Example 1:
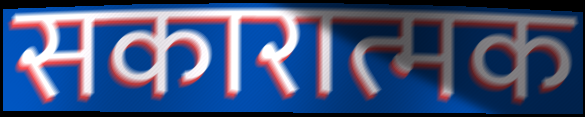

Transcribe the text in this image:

सकारात्मक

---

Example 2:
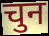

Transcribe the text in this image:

चुन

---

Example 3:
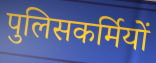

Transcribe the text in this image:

पुलिसकर्मियों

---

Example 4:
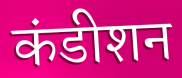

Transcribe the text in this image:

कंडीशन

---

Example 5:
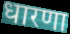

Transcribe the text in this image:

धारणा